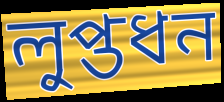
লুপ্তধন